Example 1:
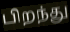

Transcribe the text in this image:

பிறந்து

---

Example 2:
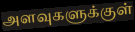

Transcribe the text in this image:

அளவுகளுக்குள்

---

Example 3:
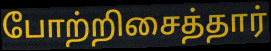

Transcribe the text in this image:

போற்றிசைத்தார்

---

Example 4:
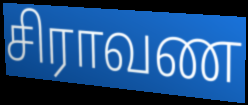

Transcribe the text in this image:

சிராவண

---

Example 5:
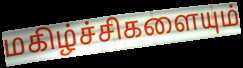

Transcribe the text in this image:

மகிழ்ச்சிகளையும்